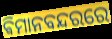
ଵିମାନବନ୍ଦରରେ